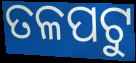
ତଳପଟୁ